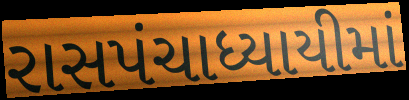
રાસપંચાધ્યાયીમાં